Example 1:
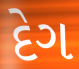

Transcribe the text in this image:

દેગ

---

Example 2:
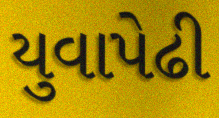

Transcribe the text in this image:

યુવાપેઢી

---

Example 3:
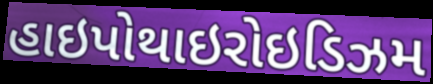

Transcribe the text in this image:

હાઇપોથાઇરોઇડિઝમ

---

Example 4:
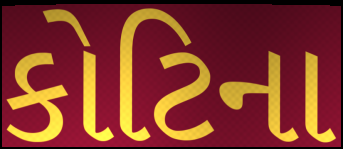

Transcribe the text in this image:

કોટિના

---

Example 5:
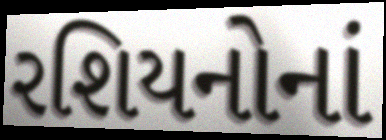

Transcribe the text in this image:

રશિયનોનાં